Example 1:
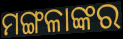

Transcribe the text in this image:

ମଙ୍ଗଳାଙ୍କର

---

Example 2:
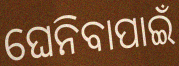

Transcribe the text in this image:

ଘେନିବାପାଇଁ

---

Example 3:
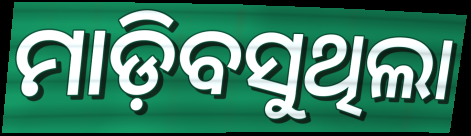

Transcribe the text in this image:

ମାଡ଼ିବସୁଥିଲା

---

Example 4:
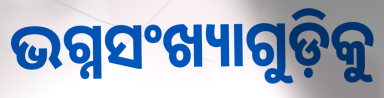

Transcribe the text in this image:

ଭଗ୍ନସଂଖ୍ୟାଗୁଡ଼ିକୁ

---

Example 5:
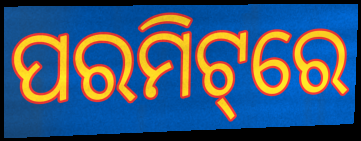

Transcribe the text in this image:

ପରମିଟ୍‌ରେ